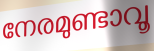
നേരമുണ്ടാവൂ